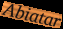
Abiatar